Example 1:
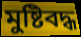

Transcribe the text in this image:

মুষ্টিবদ্ধ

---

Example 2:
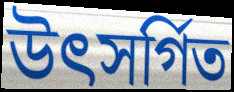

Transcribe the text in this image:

উৎসর্গিত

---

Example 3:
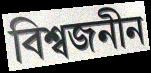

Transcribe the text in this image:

বিশ্বজনীন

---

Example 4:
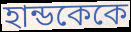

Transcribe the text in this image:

হান্ডকেকে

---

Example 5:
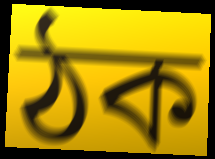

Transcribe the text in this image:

ঠক